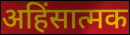
अहिंसात्मक